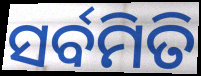
ସର୍ବମିତି